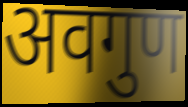
अवगुण